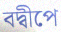
বদ্বীপে